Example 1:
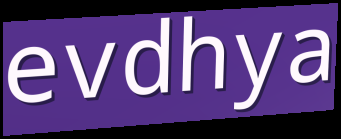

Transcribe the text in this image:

evdhya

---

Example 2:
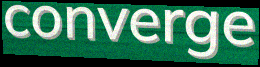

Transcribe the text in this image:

converge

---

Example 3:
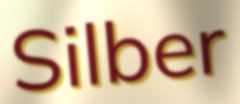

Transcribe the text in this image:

Silber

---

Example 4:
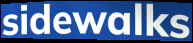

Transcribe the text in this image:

sidewalks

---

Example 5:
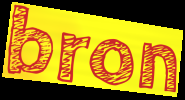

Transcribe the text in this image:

bron